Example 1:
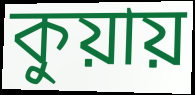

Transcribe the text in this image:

কুয়ায়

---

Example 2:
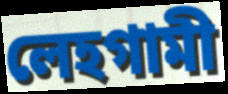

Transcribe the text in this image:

লেহগামী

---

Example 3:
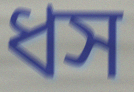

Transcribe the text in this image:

ধস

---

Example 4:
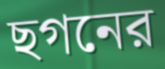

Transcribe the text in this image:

ছগনের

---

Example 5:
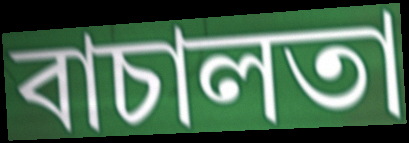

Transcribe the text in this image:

বাচালতা